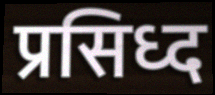
प्रसिध्द